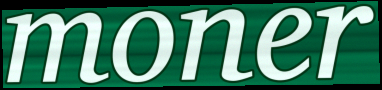
moner